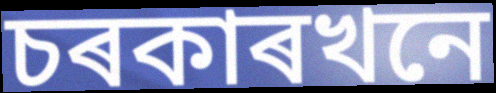
চৰকাৰখনে